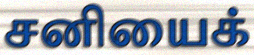
சனியைக்